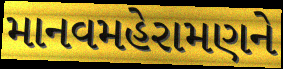
માનવમહેરામણને